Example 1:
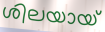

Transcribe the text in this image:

ശിലയായ്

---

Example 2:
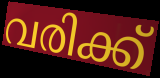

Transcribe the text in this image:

വരിക്ക്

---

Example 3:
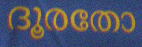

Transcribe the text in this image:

ദൂരതോ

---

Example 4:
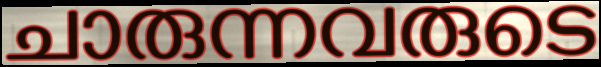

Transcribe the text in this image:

ചാരുന്നവരുടെ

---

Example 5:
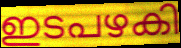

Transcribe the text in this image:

ഇടപഴകി